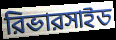
রিভারসাইড